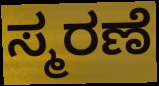
ಸ್ಮರಣೆ